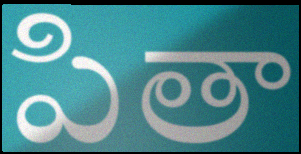
పితా